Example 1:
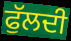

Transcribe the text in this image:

ਫੁੱਲਦੀ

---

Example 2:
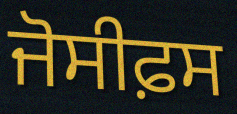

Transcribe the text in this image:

ਜੋਸੀਫ਼ਸ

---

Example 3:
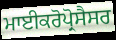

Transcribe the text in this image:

ਮਾਈਕਰੋਪ੍ਰੋਸੈਸਰ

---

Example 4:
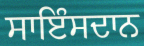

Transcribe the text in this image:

ਸਾਇੰਸਦਾਨ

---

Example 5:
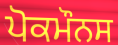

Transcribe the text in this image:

ਪੋਕਮੌਨਸ